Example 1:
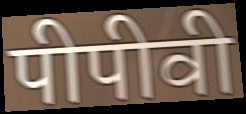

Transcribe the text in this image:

पीपीवी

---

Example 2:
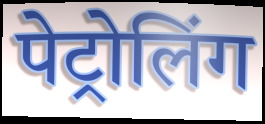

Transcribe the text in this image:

पेट्रोलिंग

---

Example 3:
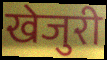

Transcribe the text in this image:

खेजुरी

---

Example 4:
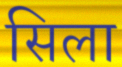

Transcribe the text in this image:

सिला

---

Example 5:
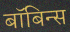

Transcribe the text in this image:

बॉबिन्स